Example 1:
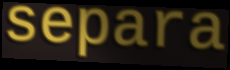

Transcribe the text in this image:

separa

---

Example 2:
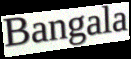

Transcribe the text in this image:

Bangala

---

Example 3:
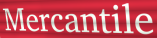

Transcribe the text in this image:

Mercantile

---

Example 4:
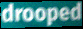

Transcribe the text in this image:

drooped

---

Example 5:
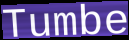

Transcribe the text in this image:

Tumbe